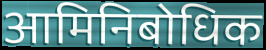
आमिनिबोधिक